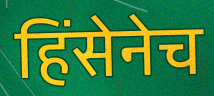
हिंसेनेच